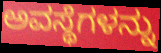
ಅವಸ್ಥೆಗಳನ್ನು